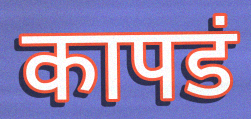
कापडं